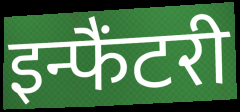
इन्फैंटरी